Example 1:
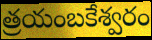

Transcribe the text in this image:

త్రయంబకేశ్వరం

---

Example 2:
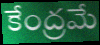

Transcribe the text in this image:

కేంద్రమే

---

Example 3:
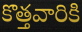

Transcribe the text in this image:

కొత్తవారికి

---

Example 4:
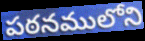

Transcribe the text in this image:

పఠనములోని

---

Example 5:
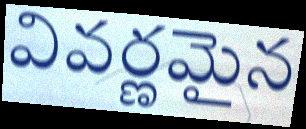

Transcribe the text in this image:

వివర్ణమైన